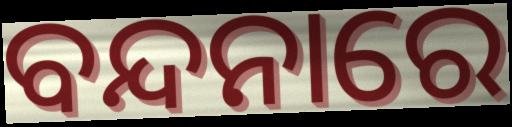
ବନ୍ଦନାରେ